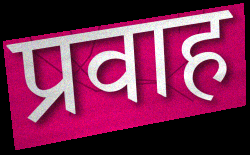
प्रवाह